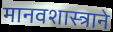
मानवशास्त्राने